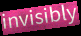
invisibly